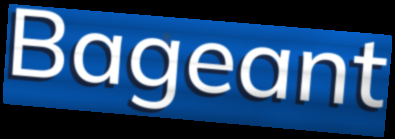
Bageant